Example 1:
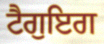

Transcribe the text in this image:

ਟੈਗੁਇਗ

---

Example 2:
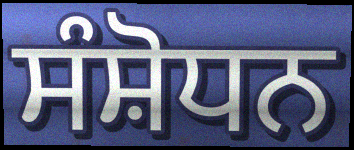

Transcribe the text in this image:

ਸੰਸ਼ੋਧਨ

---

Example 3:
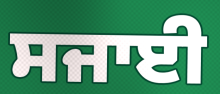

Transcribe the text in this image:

ਸਜਾਈ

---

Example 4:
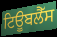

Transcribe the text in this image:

ਟਿਊਬਲੈੱਸ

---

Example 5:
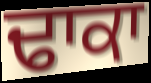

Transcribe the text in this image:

ਢਾਕਾ